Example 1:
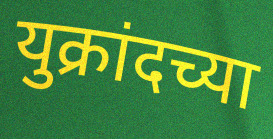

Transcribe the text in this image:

युक्रांदच्या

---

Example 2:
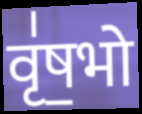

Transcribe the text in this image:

वृ॑ष॒भो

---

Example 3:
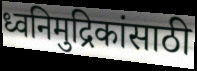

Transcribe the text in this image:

ध्वनिमुद्रिकांसाठी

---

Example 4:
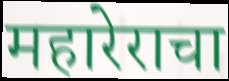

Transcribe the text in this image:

महारेराचा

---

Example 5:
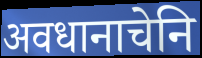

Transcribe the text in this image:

अवधानाचेनि